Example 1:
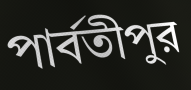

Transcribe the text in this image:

পার্বতীপুর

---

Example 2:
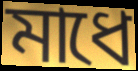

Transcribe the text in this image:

মাধে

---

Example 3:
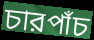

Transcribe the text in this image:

চারপাঁচ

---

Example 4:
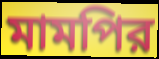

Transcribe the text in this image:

মামপির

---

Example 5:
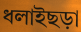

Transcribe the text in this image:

ধলাইছড়া